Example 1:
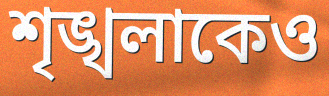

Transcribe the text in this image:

শৃঙ্খলাকেও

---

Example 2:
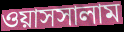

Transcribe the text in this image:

ওয়াসসালাম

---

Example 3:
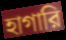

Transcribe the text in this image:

হাগারি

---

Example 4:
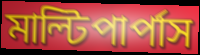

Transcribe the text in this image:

মাল্টিপার্পাস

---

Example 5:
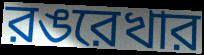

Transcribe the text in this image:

রঙরেখার